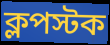
ক্লপস্টক